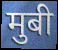
मुबी